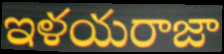
ఇళయరాజా